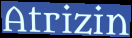
Atrizin